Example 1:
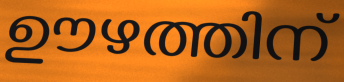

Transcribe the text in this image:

ഊഴത്തിന്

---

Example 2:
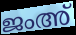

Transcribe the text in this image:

ജംഅ്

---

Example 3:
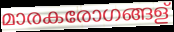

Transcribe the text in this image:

മാരകരോഗങ്ങള്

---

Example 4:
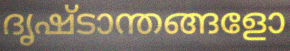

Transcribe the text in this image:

ദൃഷ്ടാന്തങ്ങളോ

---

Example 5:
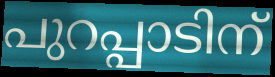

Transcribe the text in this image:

പുറപ്പാടിന്